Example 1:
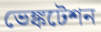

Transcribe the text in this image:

ভেঙ্কটেশন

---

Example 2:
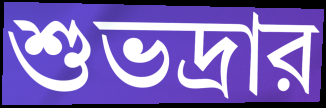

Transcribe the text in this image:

শুভদ্রার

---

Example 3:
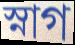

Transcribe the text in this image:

স্নাগ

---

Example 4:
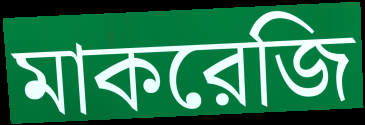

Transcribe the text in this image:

মাকরেজি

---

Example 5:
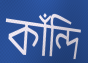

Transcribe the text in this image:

কাঁন্দি